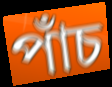
পাঁচ